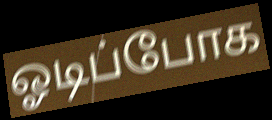
ஓடிப்போக